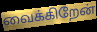
வைக்கிறேன்